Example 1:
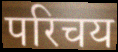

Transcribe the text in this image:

परिचय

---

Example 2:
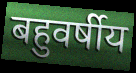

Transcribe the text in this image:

बहुवर्षीय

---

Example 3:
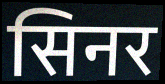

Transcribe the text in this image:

सिनर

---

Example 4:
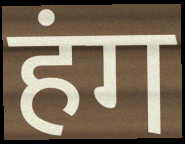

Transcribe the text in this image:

हंग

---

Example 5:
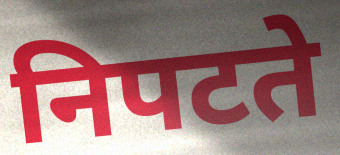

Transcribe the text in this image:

निपटते